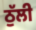
ਠੁੱਲੀ